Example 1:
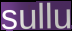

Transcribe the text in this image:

sullu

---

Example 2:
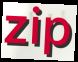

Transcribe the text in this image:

zip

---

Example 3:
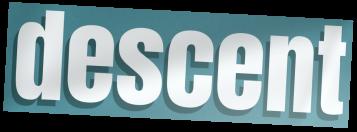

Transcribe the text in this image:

descent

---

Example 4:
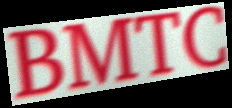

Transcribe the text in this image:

BMTC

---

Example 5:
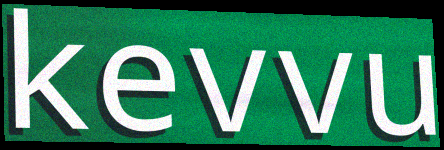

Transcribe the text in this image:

kevvu